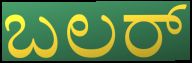
ಬಲರ್